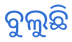
ବୁଲୁଛି